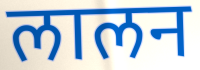
लालन